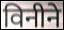
विनीने